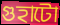
গুহাটো